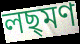
লছ্মণ